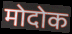
मोदोक